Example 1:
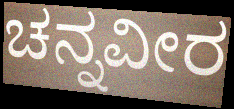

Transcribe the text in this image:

ಚನ್ನವೀರ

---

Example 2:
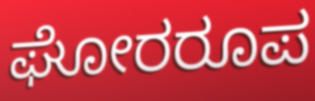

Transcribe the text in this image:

ಘೋರರೂಪ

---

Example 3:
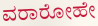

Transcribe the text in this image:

ವರಾರೋಹೇ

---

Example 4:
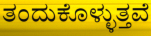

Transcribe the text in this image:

ತಂದುಕೊಳ್ಳುತ್ತವೆ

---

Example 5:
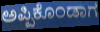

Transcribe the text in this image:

ಅಪ್ಪಿಕೊಂಡಾಗ